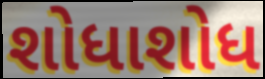
શોધાશોધ